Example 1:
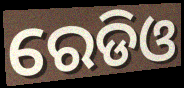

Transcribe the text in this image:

ରେଡିଓ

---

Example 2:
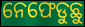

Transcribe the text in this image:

ନେଫେଡୁଛୁ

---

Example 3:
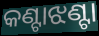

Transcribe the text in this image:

କଣ୍ଟାଝଣ୍ଟା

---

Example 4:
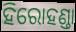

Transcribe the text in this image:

ହିରୋହଣ୍ଡା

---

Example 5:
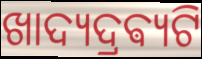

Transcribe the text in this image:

ଖାଦ୍ୟଦ୍ରଵ୍ୟଟି